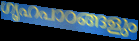
ഗൃഹപാഠങ്ങളും